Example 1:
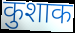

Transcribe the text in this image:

कुशाक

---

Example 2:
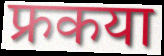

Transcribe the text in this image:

फ्रकया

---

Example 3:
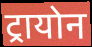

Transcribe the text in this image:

ट्रायोन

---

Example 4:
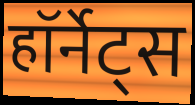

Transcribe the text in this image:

हॉर्नेट्स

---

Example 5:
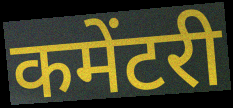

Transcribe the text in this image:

कमेंटरी